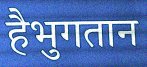
हैभुगतान